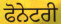
ਫੋਨੇਟਰੀ